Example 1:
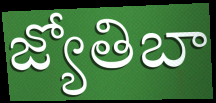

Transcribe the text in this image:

జ్యోతిబా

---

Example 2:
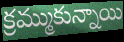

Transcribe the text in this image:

క్రమ్ముకున్నాయి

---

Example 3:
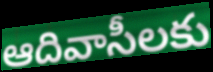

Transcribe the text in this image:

ఆదివాసీలకు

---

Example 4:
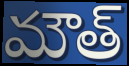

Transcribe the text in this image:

మౌత్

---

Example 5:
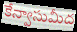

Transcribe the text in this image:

కేన్వాసుమీద